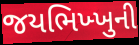
જયભિખ્ખુની